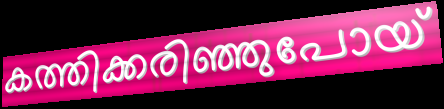
കത്തിക്കരിഞ്ഞുപോയ്